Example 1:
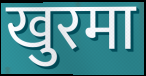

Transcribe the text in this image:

खुरमा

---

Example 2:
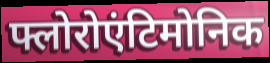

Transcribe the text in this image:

फ्लोरोएंटिमोनिक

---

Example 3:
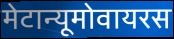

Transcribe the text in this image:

मेटान्यूमोवायरस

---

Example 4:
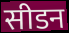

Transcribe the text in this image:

सीडन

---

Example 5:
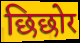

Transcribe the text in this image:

छिछोर